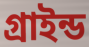
গ্রাইন্ড